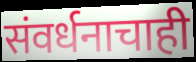
संवर्धनाचाही